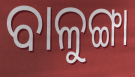
ବାଳୁଙ୍ଗା